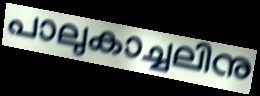
പാലുകാച്ചലിനു